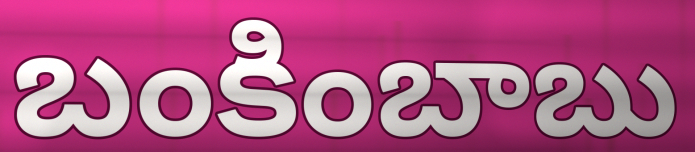
బంకింబాబు